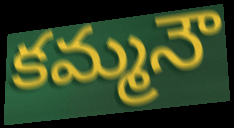
కమ్మనౌ